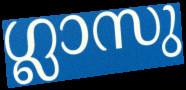
ഗ്ലാസു